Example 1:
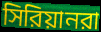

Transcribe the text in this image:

সিরিয়ানরা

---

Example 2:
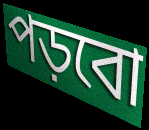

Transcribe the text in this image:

পড়বো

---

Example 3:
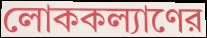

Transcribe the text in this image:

লোককল্যাণের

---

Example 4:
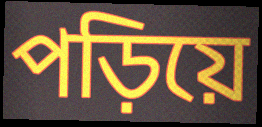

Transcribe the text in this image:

পড়িয়ে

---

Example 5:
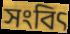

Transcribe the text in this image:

সংবিৎ